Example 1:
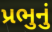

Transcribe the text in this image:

પ્રભુનું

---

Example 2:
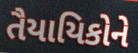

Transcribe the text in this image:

તૈયાયિકોને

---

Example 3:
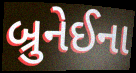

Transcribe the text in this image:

બ્રુનેઈના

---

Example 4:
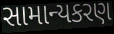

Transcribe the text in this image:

સામાન્યકરણ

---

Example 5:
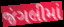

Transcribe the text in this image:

જંગલીમાં